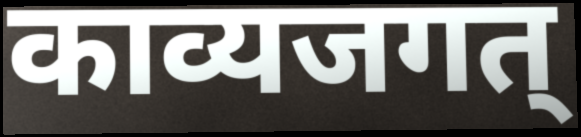
काव्यजगत्